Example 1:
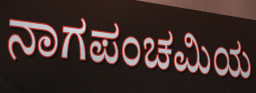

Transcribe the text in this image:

ನಾಗಪಂಚಮಿಯ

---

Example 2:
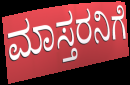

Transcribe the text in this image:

ಮಾಸ್ತರನಿಗೆ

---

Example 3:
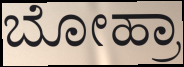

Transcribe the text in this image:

ಬೋಹ್ರಾ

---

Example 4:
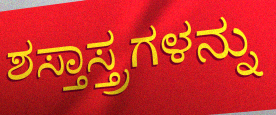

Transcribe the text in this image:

ಶಸ್ತಾಸ್ತ್ರಗಳನ್ನು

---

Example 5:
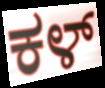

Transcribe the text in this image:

ಕಳ್